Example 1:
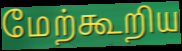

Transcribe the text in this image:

மேற்கூறிய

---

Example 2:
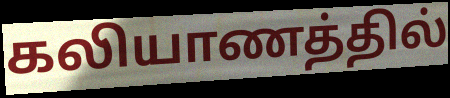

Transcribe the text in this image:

கலியாணத்தில்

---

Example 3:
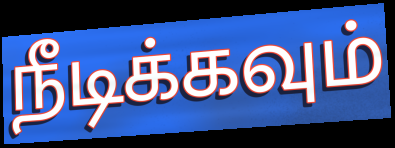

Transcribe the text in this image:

நீடிக்கவும்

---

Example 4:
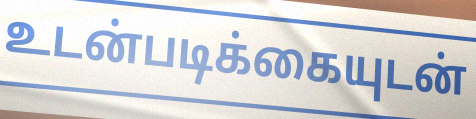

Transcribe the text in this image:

உடன்படிக்கையுடன்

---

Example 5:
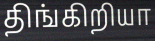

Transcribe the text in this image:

திங்கிறியா